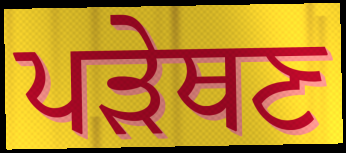
ਪੜੇਥਣ